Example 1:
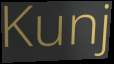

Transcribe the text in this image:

Kunj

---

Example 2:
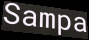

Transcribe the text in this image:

Sampa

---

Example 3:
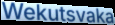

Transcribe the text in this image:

Wekutsvaka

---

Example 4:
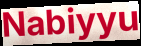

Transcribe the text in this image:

Nabiyyu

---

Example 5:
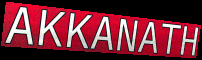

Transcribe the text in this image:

AKKANATH